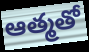
ఆత్మతో